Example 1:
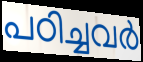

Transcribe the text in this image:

പഠിച്ചവർ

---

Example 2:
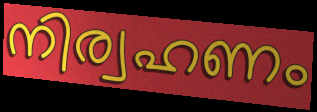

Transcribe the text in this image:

നിര്വഹണം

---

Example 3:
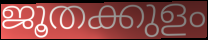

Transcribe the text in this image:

ജൂതക്കുളം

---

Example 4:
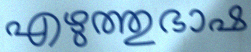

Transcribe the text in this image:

എഴുത്തുഭാഷ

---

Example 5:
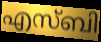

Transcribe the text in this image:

എസ്ബി